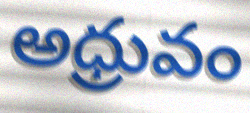
అధ్రువం